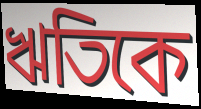
ঋতিকে